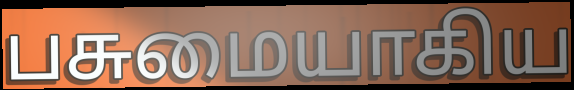
பசுமையாகிய